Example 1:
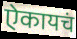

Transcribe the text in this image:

ऐकायचं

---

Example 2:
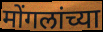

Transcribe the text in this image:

मोंगलांच्या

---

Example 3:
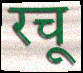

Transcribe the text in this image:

रचू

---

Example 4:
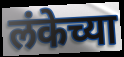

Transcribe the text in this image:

लंकेच्या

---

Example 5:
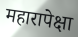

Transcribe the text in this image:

महारापेक्षा